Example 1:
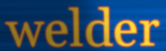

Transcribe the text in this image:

welder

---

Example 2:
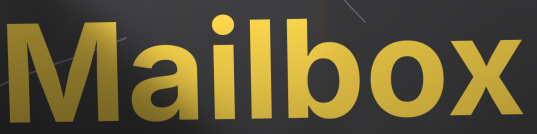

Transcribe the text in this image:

Mailbox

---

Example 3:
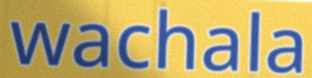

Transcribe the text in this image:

wachala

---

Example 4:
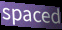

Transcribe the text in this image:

spaced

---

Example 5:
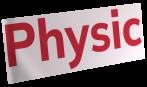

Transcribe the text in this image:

Physic